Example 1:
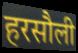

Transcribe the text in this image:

हरसौली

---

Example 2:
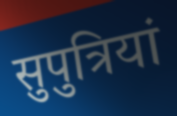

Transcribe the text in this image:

सुपुत्रियां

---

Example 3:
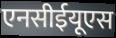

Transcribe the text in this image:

एनसीईयूएस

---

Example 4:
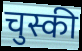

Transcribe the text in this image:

चुस्की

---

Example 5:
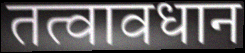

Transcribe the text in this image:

तत्वावधान